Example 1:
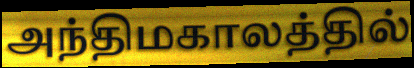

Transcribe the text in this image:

அந்திமகாலத்தில்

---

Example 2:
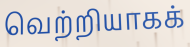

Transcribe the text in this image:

வெற்றியாகக்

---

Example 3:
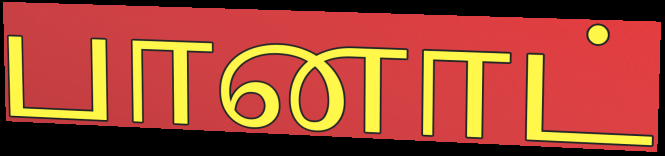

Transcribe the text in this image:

பானாட்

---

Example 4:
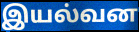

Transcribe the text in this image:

இயல்வன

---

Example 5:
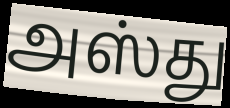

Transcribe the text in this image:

அஸ்து